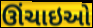
ઊંચાઇઓ